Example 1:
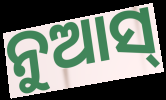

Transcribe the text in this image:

ନୁଆସ୍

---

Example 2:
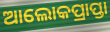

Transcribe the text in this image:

ଆଲୋକପ୍ରାପ୍ତା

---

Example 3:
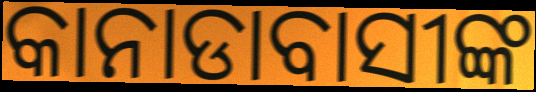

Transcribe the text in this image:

କାନାଡାବାସୀଙ୍କ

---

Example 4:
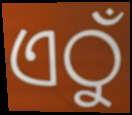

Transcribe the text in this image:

ଏଠୁଁ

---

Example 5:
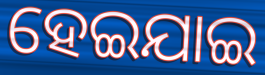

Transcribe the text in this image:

ହେଇଯାଇ